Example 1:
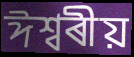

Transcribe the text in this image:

ঈশ্বৰীয়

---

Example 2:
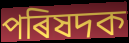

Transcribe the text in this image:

পৰিষদক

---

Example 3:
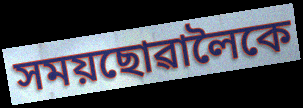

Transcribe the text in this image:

সময়ছোৱালৈকে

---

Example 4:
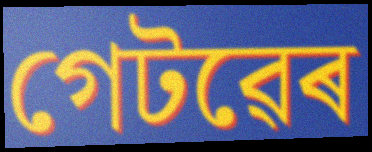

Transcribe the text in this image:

গেটৱেৰ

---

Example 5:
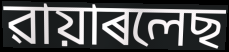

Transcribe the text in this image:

ৱায়াৰলেছ